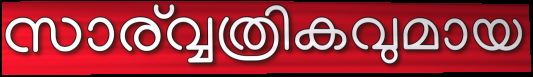
സാര്വ്വത്രികവുമായ